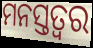
ମନସ୍ତତ୍ଵର